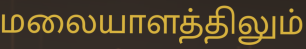
மலையாளத்திலும்